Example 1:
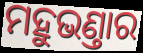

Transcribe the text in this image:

ମହୁଭଣ୍ତାର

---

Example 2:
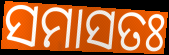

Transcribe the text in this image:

ସମାସତଃ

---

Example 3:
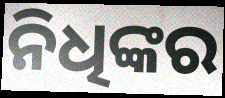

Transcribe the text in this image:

ନିଧିଙ୍କର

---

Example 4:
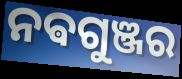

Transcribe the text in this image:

ନଵଗୁଞ୍ଜର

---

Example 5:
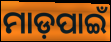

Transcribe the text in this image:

ମାଡ଼ପାଇଁ